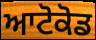
ਆਟੋਕੋਡ